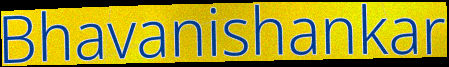
Bhavanishankar